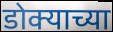
डोक्याच्या